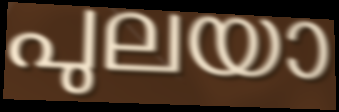
പുലയാ